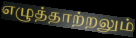
எழுத்தாற்றலும்